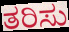
ತರಿಸು